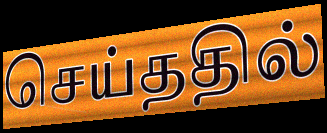
செய்ததில்